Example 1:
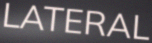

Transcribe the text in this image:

LATERAL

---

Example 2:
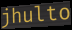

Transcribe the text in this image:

jhulto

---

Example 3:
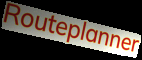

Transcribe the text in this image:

Routeplanner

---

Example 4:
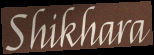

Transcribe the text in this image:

Shikhara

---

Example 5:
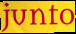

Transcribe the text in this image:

junto